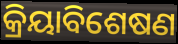
କ୍ରିୟାବିଶେଷଣ